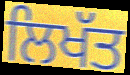
ਲਿਖੱਤ